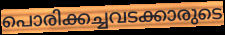
പൊരിക്കച്ചവടക്കാരുടെ